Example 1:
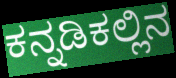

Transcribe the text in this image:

ಕನ್ನಡಿಕಲ್ಲಿನ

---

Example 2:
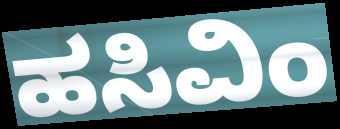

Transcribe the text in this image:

ಹಸಿವಿಂ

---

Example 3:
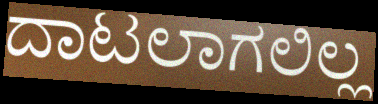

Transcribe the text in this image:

ದಾಟಲಾಗಲಿಲ್ಲ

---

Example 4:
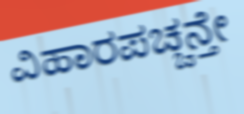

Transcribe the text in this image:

ವಿಹಾರಪಚ್ಚನ್ತೇ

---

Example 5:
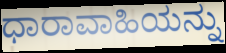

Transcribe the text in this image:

ಧಾರಾವಾಹಿಯನ್ನು